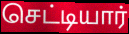
செட்டியார்